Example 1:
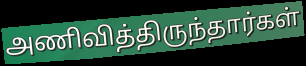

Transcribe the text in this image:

அணிவித்திருந்தார்கள்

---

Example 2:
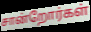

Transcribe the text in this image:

சான்றோர்கள்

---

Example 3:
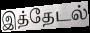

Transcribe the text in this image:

இத்தேடல்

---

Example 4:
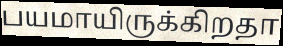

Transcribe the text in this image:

பயமாயிருக்கிறதா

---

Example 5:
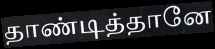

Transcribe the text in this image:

தாண்டித்தானே